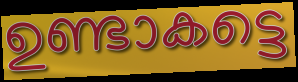
ഉണ്ടാകട്ടെ